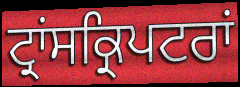
ਟ੍ਰਾਂਸਕ੍ਰਿਪਟਰਾਂ